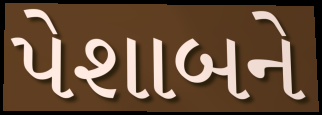
પેશાબને